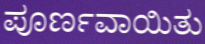
ಪೂರ್ಣವಾಯಿತು